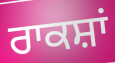
ਰਾਕਸ਼ਾਂ